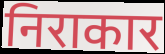
निराकार